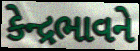
કેન્દ્રભાવને